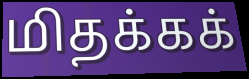
மிதக்கக்